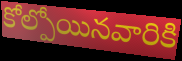
కోల్పోయినవారికి